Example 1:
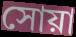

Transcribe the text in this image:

সোয়া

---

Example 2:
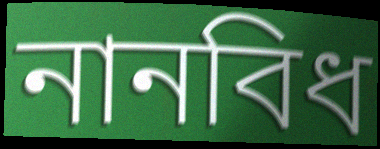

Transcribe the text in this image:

নানবিধ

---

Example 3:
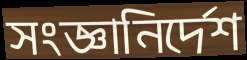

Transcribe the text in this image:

সংজ্ঞানির্দেশ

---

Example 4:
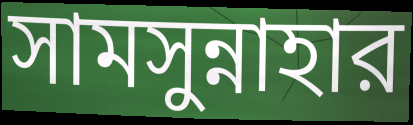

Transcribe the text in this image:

সামসুন্নাহার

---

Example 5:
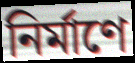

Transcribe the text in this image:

নির্মাণে